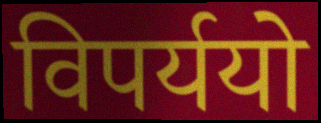
विपर्ययो